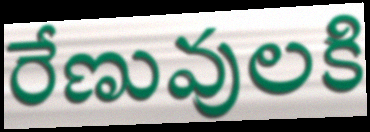
రేణువులకి